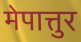
मेपात्तुर